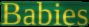
Babies